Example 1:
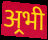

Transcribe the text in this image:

अ्रभी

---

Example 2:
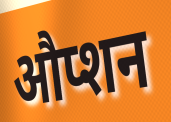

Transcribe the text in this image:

औप्शन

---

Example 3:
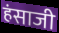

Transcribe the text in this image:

हंसाजी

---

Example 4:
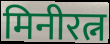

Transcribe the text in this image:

मिनीरत्न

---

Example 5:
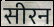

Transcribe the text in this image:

सीरन